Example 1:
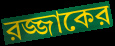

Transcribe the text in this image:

রজ্জাকের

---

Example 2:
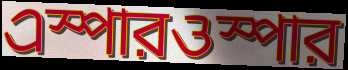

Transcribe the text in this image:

এস্পারওস্পার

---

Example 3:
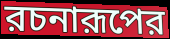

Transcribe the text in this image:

রচনারূপের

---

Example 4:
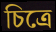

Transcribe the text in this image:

চিত্রে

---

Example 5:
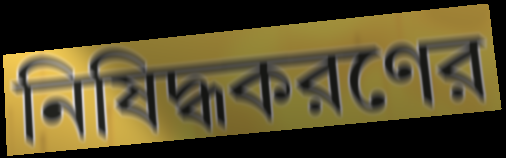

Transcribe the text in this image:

নিষিদ্ধকরণের